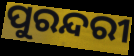
ପୁରନ୍ଦରୀ